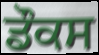
ਡੌਕਸ